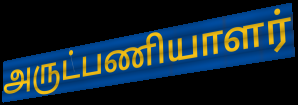
அருட்பணியாளர்